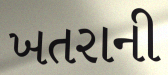
ખતરાની